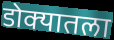
डोक्यातला